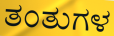
ತಂತುಗಳ